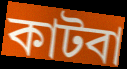
কাটবা